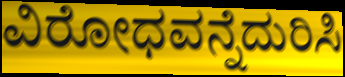
ವಿರೋಧವನ್ನೆದುರಿಸಿ